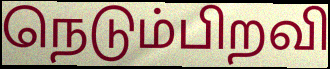
நெடும்பிறவி